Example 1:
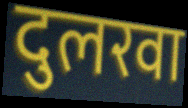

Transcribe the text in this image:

दुलरवा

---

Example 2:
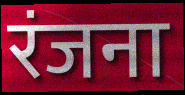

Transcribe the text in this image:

रंजना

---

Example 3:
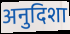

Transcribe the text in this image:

अनुदिशा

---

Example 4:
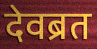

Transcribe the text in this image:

देवब्रत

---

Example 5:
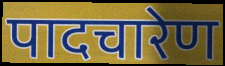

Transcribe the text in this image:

पादचारेण